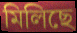
মিলিছে